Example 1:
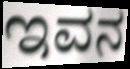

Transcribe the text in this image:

ಇವನ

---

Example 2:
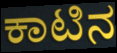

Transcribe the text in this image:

ಕಾಟಿನ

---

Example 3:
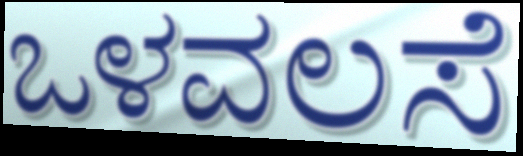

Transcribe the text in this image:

ಒಳವಲಸೆ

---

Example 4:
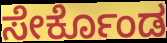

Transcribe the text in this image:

ಸೇರ್ಕೊಂಡ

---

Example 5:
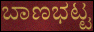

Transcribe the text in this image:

ಬಾಣಭಟ್ಟ